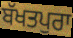
ਬੱਖਤਪੁਰਾ